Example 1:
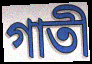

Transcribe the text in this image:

গাতী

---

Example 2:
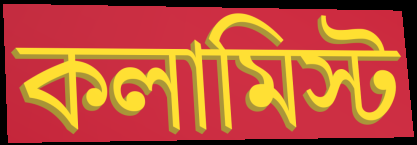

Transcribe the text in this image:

কলামিস্ট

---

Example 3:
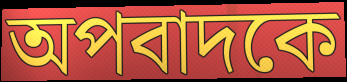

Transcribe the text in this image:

অপবাদকে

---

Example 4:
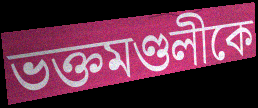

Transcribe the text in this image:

ভক্তমণ্ডলীকে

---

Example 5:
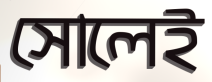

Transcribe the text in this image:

সোলেই